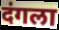
दंगला